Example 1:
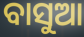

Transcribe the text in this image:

ବାସୁଆ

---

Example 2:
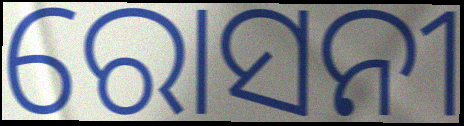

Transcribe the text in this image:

ରୋସନୀ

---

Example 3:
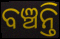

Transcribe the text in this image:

ବଞ୍ଚନ୍ତି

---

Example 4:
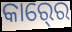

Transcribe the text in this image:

କାର୍‍ରେ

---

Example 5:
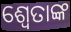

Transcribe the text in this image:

ଶ୍ଵେତାଙ୍କ